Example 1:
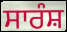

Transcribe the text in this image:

ਸਾਰੰਸ਼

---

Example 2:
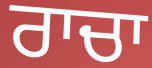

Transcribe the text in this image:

ਰਾਚਾ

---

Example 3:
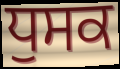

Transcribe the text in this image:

ਧੁਸਕ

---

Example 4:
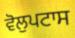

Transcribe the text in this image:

ਵੋਲੁਪਟਾਸ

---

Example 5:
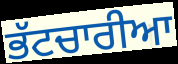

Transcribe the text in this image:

ਭੱਟਚਾਰੀਆ